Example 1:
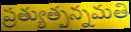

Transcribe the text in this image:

ప్రత్యుత్పన్నమతి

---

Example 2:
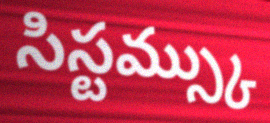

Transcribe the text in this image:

సిస్టమ్స్కు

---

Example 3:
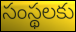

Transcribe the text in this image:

సంస్థలకు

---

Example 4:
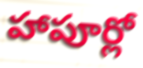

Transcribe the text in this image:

హాపూర్లో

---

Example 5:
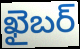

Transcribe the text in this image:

ఖైబర్